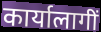
कार्यालागीं